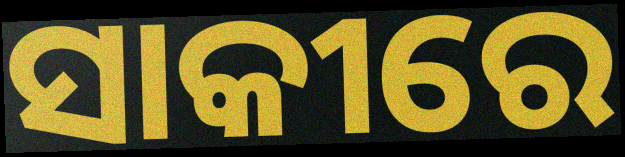
ସାକୀରେ